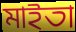
মাইতা